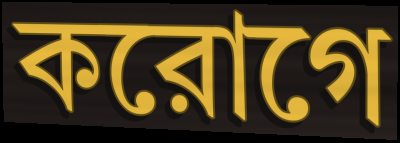
করোগে